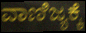
ವಾಣಿಜ್ಯಕ್ಕೆ